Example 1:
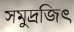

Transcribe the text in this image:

সমুদ্রজিৎ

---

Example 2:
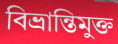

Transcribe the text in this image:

বিভ্রান্তিমুক্ত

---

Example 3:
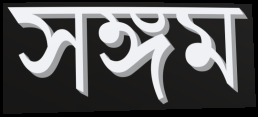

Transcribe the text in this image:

সঙ্গম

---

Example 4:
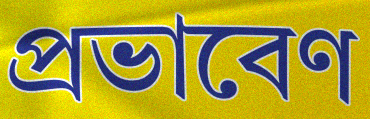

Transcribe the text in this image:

প্রভাবেণ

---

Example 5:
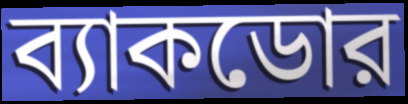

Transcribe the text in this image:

ব্যাকডোর